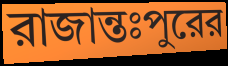
রাজান্তঃপুরের